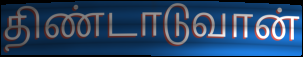
திண்டாடுவான்